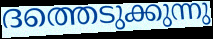
ദത്തെടുക്കുന്നു